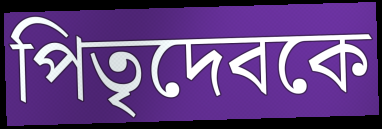
পিতৃদেবকে